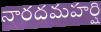
నారదమహర్షి